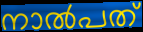
നാൽപത്